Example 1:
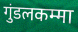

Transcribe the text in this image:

गुंडलकम्मा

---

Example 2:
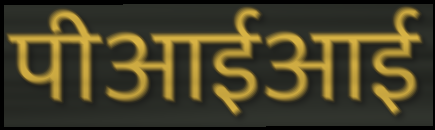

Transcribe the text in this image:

पीआईआई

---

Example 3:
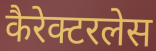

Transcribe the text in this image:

कैरेक्टरलेस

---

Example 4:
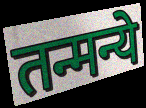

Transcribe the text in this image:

तन्मन्ये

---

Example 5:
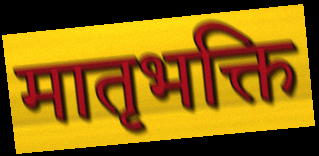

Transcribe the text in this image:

मातृभक्ति